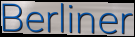
Berliner